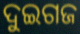
ଦୁଇଗଜ